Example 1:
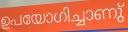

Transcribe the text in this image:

ഉപയോഗിച്ചാണു്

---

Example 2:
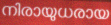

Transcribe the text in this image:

നിരായുധരായ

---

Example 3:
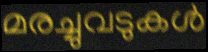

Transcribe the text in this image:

മരച്ചുവടുകൾ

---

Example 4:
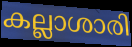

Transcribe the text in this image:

കല്ലാശാരി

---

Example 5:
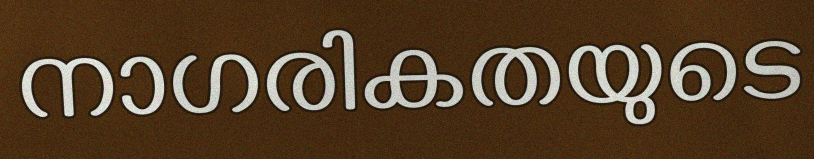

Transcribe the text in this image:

നാഗരികതയുടെ